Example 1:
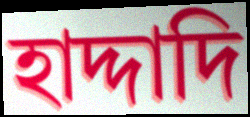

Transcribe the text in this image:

হাদ্দাদি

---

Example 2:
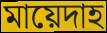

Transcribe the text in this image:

মায়েদাহ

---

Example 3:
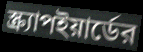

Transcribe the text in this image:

স্ক্র্যাপইয়ার্ডের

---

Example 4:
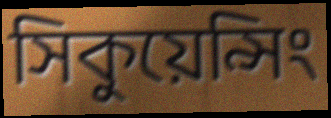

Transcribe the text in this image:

সিকুয়েন্সিং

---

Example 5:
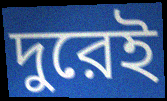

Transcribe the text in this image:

দুরেই